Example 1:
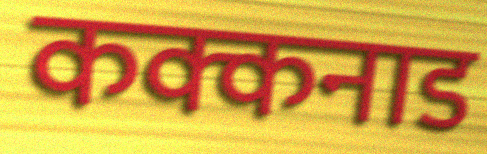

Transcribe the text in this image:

कक्कनाड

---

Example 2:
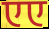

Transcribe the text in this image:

एए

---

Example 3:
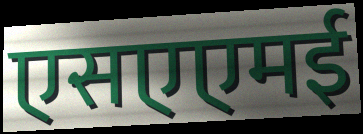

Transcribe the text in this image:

एसएएमई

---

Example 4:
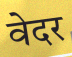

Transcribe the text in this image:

वेदर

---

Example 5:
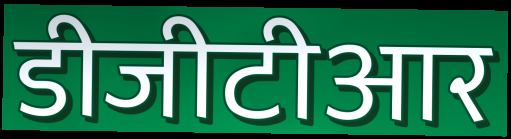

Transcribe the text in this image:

डीजीटीआर